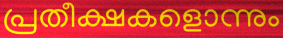
പ്രതീക്ഷകളൊന്നും